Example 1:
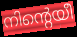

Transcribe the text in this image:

നിന്റെയീ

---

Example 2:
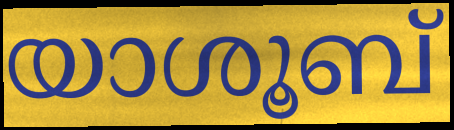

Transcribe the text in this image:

യാശൂബ്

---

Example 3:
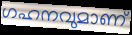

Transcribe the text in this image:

ഗഹനവുമാണ്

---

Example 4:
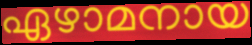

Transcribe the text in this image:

ഏഴാമനായ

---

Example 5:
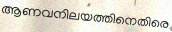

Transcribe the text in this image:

ആണവനിലയത്തിനെതിരെ